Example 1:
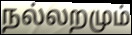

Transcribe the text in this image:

நல்லறமும்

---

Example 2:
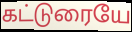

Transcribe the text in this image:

கட்டுரையே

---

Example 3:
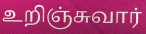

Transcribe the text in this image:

உறிஞ்சுவார்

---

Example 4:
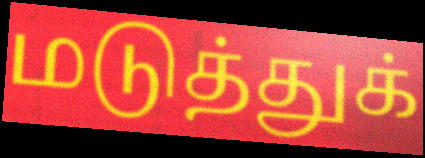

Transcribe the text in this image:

மடுத்துக்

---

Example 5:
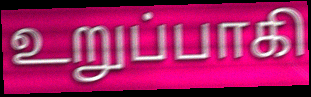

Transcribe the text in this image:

உறுப்பாகி